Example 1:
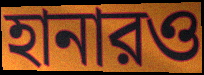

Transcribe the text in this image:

হানারও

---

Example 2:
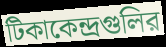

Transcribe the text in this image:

টিকাকেন্দ্রগুলির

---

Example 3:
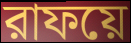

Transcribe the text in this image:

রাফয়ে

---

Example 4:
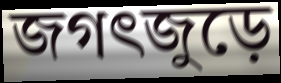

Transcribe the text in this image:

জগৎজুড়ে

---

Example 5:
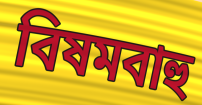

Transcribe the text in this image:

বিষমবাহু